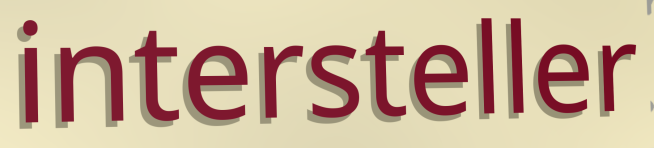
intersteller